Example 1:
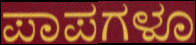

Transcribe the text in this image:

ಪಾಪಗಳೂ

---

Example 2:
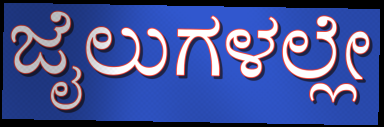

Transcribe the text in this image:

ಜೈಲುಗಳಲ್ಲೇ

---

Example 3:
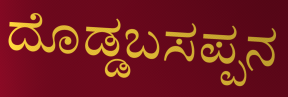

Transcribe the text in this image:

ದೊಡ್ಡಬಸಪ್ಪನ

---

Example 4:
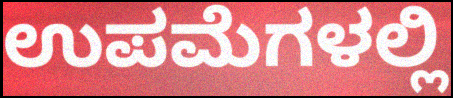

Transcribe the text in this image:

ಉಪಮೆಗಳಲ್ಲಿ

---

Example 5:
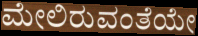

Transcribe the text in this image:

ಮೇಲಿರುವಂತೆಯೇ